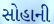
સોહાની